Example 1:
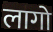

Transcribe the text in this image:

लागो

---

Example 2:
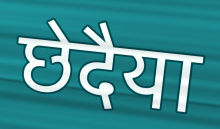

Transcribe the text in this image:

छेदैया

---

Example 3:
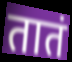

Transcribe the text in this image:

तातं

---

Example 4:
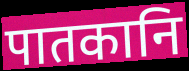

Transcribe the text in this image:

पातकानि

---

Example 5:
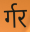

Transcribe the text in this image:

र्गर